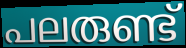
പലരുണ്ട്